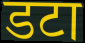
डटा